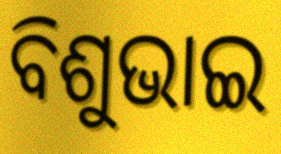
ବିଶୁଭାଇ